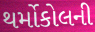
થર્મોકોલની